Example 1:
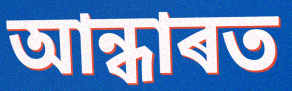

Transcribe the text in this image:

আন্ধাৰত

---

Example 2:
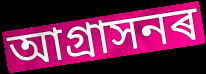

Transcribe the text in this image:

আগ্ৰাসনৰ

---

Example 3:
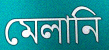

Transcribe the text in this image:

মেলানি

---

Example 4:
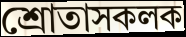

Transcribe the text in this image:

শ্ৰোতাসকলক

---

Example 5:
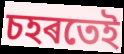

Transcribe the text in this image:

চহৰতেই